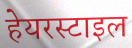
हेयरस्टाइल